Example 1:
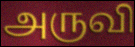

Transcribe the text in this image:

அருவி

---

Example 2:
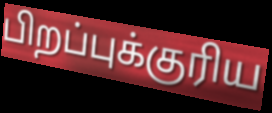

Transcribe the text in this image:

பிறப்புக்குரிய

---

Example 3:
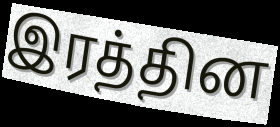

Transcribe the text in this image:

இரத்தின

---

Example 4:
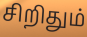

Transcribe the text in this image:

சிறிதும்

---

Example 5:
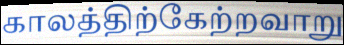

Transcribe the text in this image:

காலத்திற்கேற்றவாறு